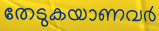
തേടുകയാണവർ